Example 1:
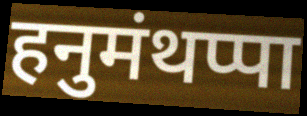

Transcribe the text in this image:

हनुमंथप्पा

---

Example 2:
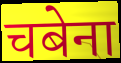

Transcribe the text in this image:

चबेना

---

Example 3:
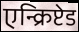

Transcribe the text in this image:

एन्क्रिप्टेड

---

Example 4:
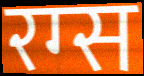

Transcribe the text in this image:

रग्स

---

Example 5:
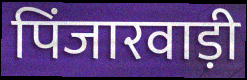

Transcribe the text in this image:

पिंजारवाड़ी